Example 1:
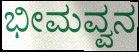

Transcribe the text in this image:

ಭೀಮವ್ವನ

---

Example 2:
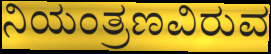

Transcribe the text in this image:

ನಿಯಂತ್ರಣವಿರುವ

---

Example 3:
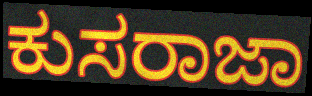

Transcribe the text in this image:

ಕುಸರಾಜಾ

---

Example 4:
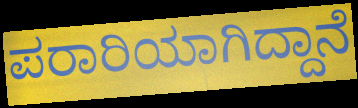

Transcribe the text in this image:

ಪರಾರಿಯಾಗಿದ್ದಾನೆ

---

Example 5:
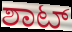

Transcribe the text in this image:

ಶಾಟ್